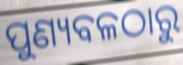
ପୁଣ୍ୟବଳଠାରୁ